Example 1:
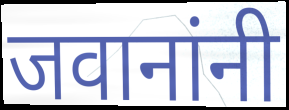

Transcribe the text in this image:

जवानांनी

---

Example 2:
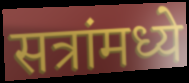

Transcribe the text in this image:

सत्रांमध्ये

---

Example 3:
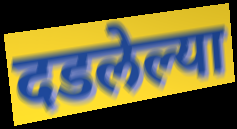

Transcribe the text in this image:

दडलेल्या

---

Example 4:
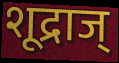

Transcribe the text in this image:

शूद्राज्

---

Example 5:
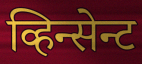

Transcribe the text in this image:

व्हिन्सेन्ट